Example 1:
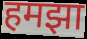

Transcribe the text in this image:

हमझा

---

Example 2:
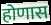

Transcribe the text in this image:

होणास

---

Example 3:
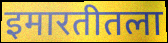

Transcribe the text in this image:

इमारतीतला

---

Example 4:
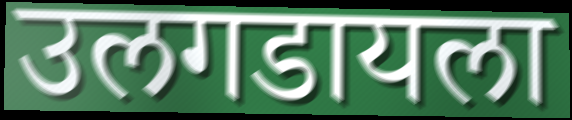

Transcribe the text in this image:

उलगडायला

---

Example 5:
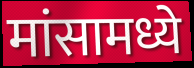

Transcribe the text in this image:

मांसामध्ये